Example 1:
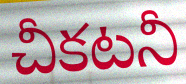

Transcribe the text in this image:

చీకటనీ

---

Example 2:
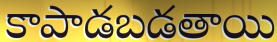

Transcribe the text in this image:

కాపాడబడతాయి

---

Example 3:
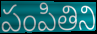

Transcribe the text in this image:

పంపితిని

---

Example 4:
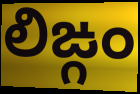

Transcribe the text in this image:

లిఙ్గం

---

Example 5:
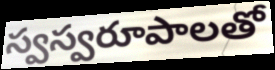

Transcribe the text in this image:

స్వస్వరూపాలతో